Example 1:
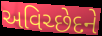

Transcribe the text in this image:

અવિચ્છેદને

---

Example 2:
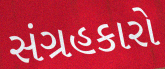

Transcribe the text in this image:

સંગ્રહકારો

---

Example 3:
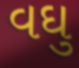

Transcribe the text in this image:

વઘુ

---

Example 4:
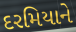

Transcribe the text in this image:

દરમિયાને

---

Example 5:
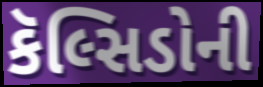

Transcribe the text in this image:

કૅલ્સિડોની